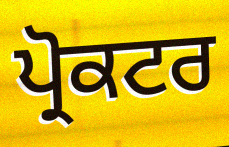
ਪ੍ਰੋਕਟਰ